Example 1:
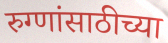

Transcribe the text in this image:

रुग्णांसाठीच्या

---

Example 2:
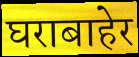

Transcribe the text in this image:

घराबाहेर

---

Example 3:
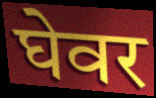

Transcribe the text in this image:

घेवर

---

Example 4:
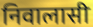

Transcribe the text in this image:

निवालासी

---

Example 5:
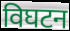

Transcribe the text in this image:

विघटन